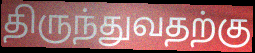
திருந்துவதற்கு